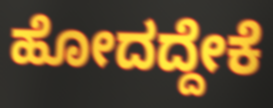
ಹೋದದ್ದೇಕೆ